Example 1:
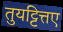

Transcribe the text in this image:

तुयट्टित्तए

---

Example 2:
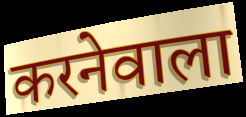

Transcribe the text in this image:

करनेवाला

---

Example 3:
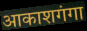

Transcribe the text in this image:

आकाशगंगा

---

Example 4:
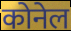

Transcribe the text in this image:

कोनेल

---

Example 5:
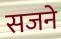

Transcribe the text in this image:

सजने